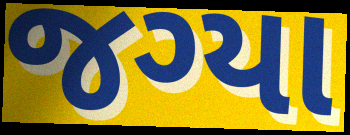
જગ્યા